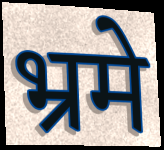
भ्रमे